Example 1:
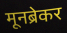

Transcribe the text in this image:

मूनब्रेकर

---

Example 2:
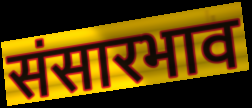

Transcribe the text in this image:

संसारभाव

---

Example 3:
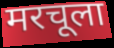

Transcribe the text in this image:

मरचूला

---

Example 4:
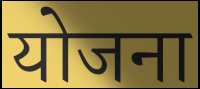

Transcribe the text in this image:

योजना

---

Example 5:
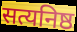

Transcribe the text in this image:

सत्यनिष्ठ